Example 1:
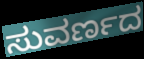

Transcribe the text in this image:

ಸುವರ್ಣದ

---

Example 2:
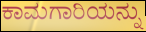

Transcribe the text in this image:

ಕಾಮಗಾರಿಯನ್ನು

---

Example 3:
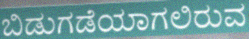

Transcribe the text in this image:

ಬಿಡುಗಡೆಯಾಗಲಿರುವ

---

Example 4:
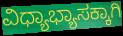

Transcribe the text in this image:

ವಿಧ್ಯಾಭ್ಯಾಸಕ್ಕಾಗಿ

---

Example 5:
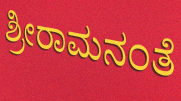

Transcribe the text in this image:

ಶ್ರೀರಾಮನಂತೆ